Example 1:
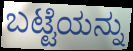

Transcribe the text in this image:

ಬಟ್ಟೆಯನ್ನು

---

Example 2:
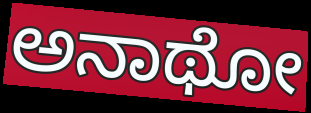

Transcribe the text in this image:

ಅನಾಥೋ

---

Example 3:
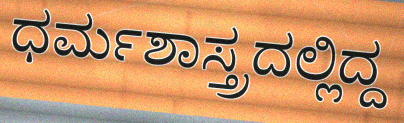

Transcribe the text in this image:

ಧರ್ಮಶಾಸ್ತ್ರದಲ್ಲಿದ್ದ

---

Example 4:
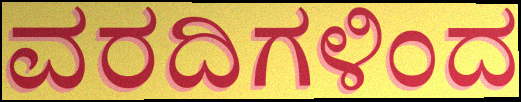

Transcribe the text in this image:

ವರದಿಗಳಿಂದ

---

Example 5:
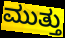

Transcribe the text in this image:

ಮುತ್ತು